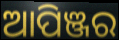
ଆପିଞ୍ଜର